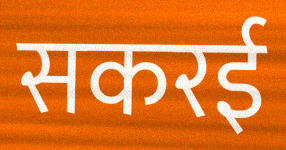
सकरई